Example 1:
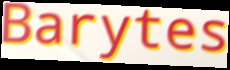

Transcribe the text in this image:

Barytes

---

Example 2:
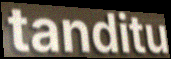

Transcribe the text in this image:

tanditu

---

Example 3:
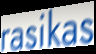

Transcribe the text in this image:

rasikas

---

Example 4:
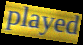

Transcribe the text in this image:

played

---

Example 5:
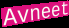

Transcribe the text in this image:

Avneet